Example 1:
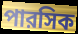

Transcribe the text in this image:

পারসিক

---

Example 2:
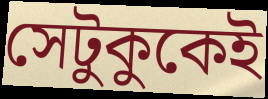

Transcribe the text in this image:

সেটুকুকেই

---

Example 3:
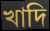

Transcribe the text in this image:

খাদি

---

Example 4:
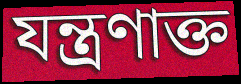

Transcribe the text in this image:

যন্ত্রণাক্ত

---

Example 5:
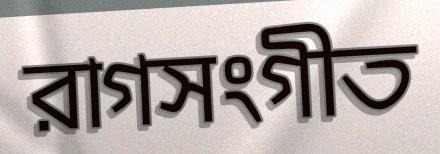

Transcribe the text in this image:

রাগসংগীত